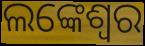
ଲଙ୍କେଶ୍ବର